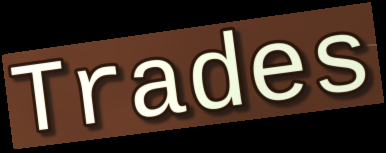
Trades